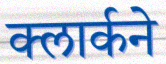
क्लार्कने